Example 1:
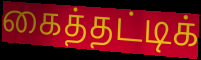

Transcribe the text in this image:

கைத்தட்டிக்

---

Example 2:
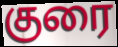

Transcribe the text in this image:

குரை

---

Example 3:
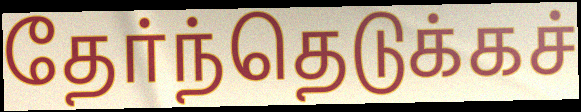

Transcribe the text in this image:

தேர்ந்தெடுக்கச்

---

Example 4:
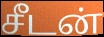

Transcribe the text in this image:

சீடன்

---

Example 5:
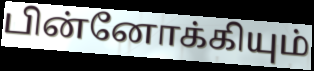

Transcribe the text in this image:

பின்னோக்கியும்